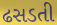
ઢસડતી